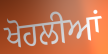
ਖੋਹਲੀਆਂ